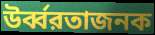
উর্ব্বরতাজনক